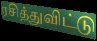
ரசித்துவிட்டு